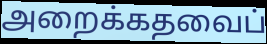
அறைக்கதவைப்